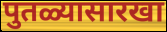
पुतळ्यासारखा